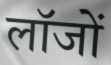
लॉजों